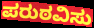
ಪರುಠವಿಸು